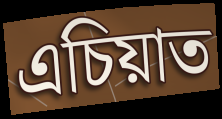
এচিয়াত